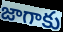
జాగాకు